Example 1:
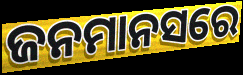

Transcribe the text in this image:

ଜନମାନସରେ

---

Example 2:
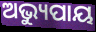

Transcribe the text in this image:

ଅଭ୍ୟୁପାୟ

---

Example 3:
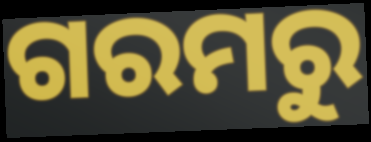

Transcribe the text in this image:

ଗରମରୁ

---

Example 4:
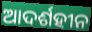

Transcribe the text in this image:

ଆଦର୍ଶହୀନ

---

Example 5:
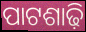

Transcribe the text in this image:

ପାଟଶାଢ଼ି